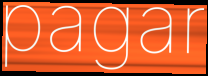
pagar